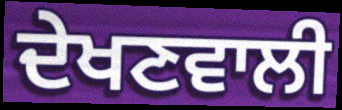
ਦੇਖਣਵਾਲੀ